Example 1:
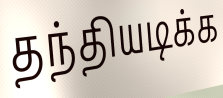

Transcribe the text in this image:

தந்தியடிக்க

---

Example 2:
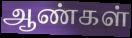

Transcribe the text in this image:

ஆண்கள்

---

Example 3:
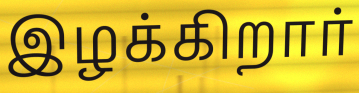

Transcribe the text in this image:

இழக்கிறார்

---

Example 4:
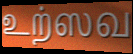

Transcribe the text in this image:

உற்ஸவ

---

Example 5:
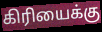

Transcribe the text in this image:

கிரியைக்கு